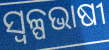
ସ୍ୱଳ୍ପଭାଷୀ